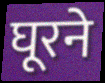
घूरने